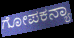
ಗೋಪಕನ್ಯಾ